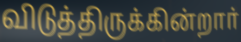
விடுத்திருக்கின்றார்